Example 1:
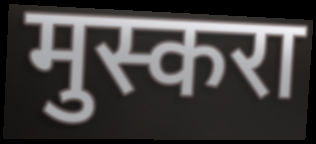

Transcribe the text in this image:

मुस्करा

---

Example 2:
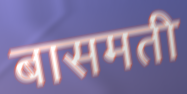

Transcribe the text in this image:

बासमती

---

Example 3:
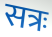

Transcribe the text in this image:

सत्रः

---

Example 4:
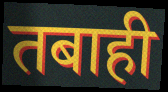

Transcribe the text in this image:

तबाही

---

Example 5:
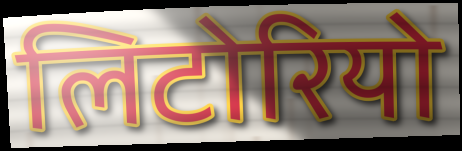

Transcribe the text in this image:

लिटोरियो